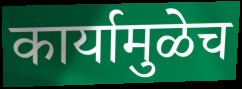
कार्यामुळेच